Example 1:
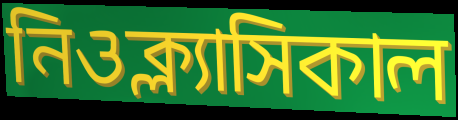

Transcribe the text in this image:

নিওক্ল্যাসিকাল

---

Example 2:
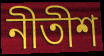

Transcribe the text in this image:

নীতীশ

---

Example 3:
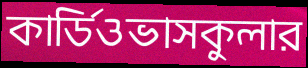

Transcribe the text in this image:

কার্ডিওভাসকুলার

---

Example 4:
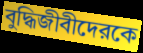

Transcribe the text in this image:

বুদ্ধিজীবীদেরকে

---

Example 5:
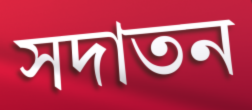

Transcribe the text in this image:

সদাতন